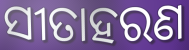
ସୀତାହରଣ